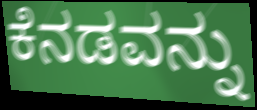
ಕೆನಡವನ್ನು